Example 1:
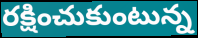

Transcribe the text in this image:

రక్షించుకుంటున్న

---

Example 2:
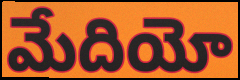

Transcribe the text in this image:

మేదియో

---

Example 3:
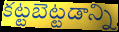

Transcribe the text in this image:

కట్టబెట్టడాన్ని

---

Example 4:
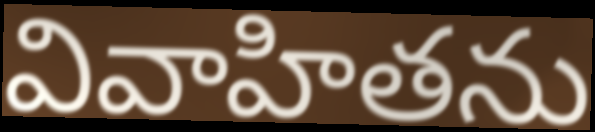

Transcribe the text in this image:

వివాహితను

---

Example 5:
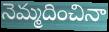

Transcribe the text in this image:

నెమ్మదించినా